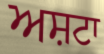
ਅਸ਼ਟਾ